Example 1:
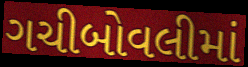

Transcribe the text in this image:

ગચીબોવલીમાં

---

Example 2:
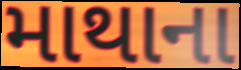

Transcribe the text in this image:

માથાના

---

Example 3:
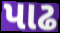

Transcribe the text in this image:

પાઢ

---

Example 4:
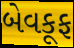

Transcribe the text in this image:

બેવકૂફ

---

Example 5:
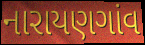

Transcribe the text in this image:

નારાયણગાંવ